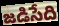
జడిసేది